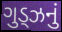
ગુડ્ઝનું